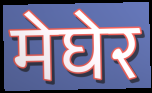
मेघेर